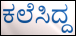
ಕಲೆಸಿದ್ದ